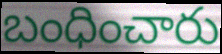
బంధించారు